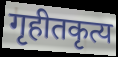
गृहीतकृत्य